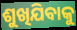
ଶୁଖିଯିବାକୁ